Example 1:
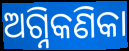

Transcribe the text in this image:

ଅଗ୍ନିକଣିକା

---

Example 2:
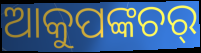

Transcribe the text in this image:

ଆକୁପଙ୍କଚର୍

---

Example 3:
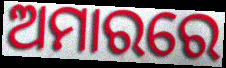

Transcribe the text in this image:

ଅମାରରେ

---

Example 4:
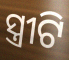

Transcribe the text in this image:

ସ୍ତ୍ରୀଟି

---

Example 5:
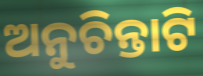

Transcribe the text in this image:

ଅନୁଚିନ୍ତାଟି